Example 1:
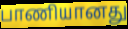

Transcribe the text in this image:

பாணியானது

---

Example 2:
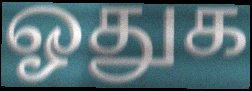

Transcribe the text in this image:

ஓதுக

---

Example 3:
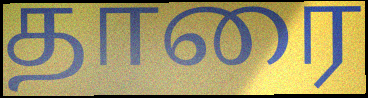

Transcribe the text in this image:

தாரை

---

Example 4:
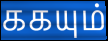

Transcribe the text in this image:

ககயும்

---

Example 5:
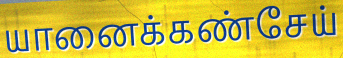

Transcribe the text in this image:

யானைக்கண்சேய்